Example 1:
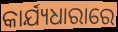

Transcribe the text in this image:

କାର୍ଯ୍ୟଧାରାରେ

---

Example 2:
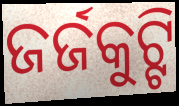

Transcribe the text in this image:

ଜର୍ଜକୁଟ୍ଟି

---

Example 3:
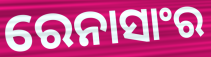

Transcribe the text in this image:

ରେନାସାଂର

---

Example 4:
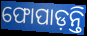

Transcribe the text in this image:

ଫୋପାଡ଼ନ୍ତି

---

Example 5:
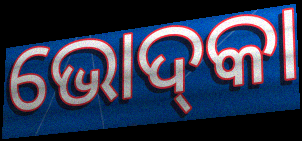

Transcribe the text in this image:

ଭୋଦ୍‌କା